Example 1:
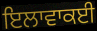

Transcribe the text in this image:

ਇਲਾਵਾਕਈ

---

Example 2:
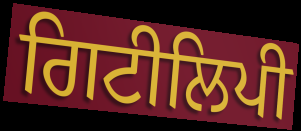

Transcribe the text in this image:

ਗਿਟੀਲਿਪੀ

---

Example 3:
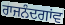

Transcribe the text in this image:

ਰਾਜਨੰਦਗਾਂਵ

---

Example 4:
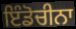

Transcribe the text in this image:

ਇੰਡੋਚੀਨਾ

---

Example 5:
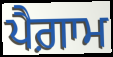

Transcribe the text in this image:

ਪੈਗ਼ਾਮ